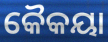
କୈକୟା